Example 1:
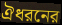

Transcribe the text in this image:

ঐধরনের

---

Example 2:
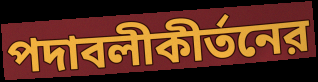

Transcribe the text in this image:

পদাবলীকীর্তনের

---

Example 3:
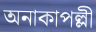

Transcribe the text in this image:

অনাকাপল্লী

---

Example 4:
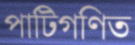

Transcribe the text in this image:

পাটিগণিত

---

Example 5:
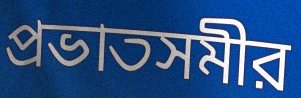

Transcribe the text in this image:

প্রভাতসমীর